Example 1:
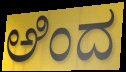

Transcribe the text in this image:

ಅಿಂದ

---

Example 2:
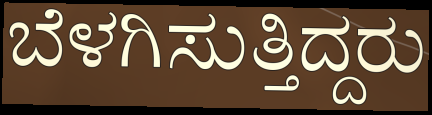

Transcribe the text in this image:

ಬೆಳಗಿಸುತ್ತಿದ್ದರು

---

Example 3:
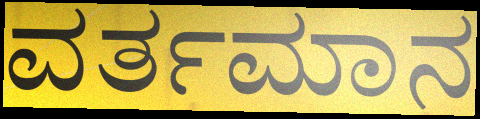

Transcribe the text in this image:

ವರ್ತಮಾನ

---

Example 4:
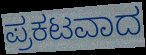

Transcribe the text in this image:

ಪ್ರಕಟವಾದ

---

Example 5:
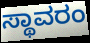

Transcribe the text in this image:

ಸ್ಥಾವರಂ